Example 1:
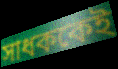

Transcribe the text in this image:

সাধককেই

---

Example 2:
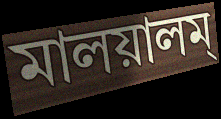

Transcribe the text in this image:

মালয়ালম্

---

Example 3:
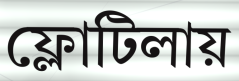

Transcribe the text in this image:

ফ্লোটিলায়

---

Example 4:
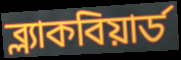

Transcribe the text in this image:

ব্ল্যাকবিয়ার্ড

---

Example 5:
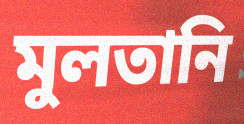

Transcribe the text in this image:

মুলতানি